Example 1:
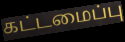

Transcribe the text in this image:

கட்டமைப்பு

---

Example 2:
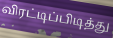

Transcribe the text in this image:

விரட்டிப்பிடித்து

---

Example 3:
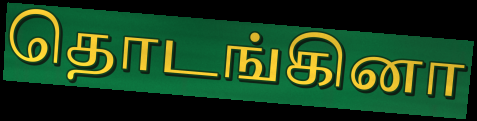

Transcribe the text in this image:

தொடங்கினா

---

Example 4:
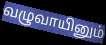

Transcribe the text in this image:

வழுவாயினும்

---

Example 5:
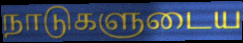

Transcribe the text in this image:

நாடுகளுடைய